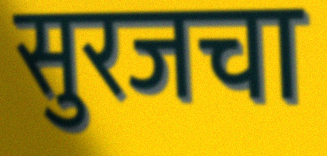
सुरजचा